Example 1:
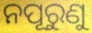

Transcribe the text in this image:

ନପୂରୁଣୁ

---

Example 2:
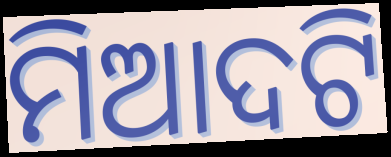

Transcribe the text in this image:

ମିଆଦଟି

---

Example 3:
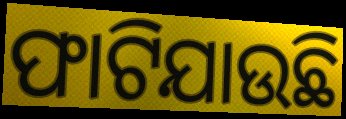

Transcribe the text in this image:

ଫାଟିଯାଉଛି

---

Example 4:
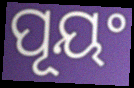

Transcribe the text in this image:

ପୂୟଂ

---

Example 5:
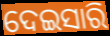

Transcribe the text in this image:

ଦେଇସାରି